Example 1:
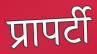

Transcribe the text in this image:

प्रापर्टी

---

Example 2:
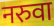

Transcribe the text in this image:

नरुवा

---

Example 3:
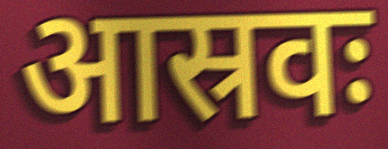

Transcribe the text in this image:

आस्रवः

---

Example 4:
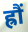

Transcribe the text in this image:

ह्रौं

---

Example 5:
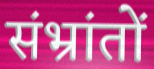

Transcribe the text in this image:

संभ्रांतों